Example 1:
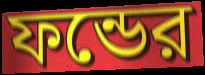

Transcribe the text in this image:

ফন্ডের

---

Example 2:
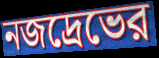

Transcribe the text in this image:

নজদ্রেভের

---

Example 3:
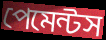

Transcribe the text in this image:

পেমেন্টস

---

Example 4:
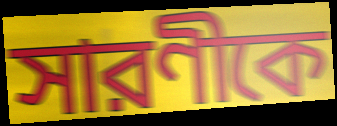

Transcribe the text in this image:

সারণীকে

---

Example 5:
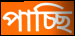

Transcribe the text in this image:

পাচ্ছি